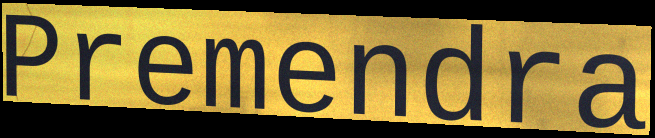
Premendra